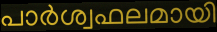
പാർശ്വഫലമായി